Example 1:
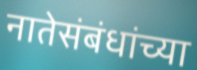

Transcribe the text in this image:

नातेसंबंधांच्या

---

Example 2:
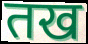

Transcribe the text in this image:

तख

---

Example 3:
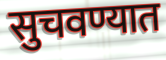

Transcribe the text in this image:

सुचवण्यात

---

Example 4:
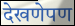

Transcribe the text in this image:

देखणेपण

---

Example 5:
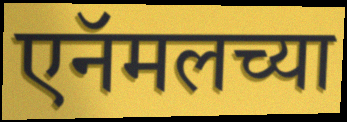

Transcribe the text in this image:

एनॅमलच्या